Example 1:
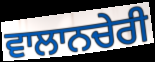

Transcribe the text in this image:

ਵਾਲਾਨਚੇਰੀ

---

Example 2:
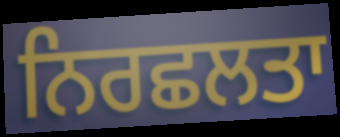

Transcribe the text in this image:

ਨਿਰਛਲਤਾ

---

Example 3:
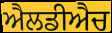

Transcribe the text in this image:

ਐਲਡੀਐਚ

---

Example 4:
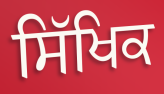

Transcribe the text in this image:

ਸਿੱਖਿਕ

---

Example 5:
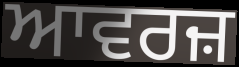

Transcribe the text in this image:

ਆਵਰਜ਼